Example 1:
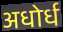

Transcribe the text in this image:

अधोर्ध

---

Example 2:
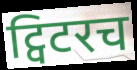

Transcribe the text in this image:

ट्विटरच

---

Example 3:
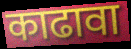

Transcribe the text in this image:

काढावा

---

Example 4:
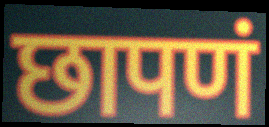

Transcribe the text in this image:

छापणं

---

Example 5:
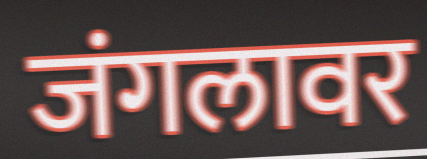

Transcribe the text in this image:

जंगलावर